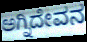
ಅಗ್ನಿದೇವನ